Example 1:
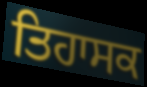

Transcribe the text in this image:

ਤਿਹਾਸਕ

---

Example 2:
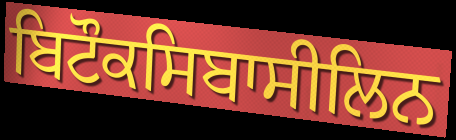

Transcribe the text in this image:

ਬਿਟੌਕਸਿਬਾਸੀਲਿਨ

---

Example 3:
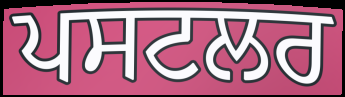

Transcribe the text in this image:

ਪਸਟਲਰ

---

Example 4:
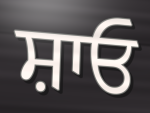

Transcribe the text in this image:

ਸ਼ਾਓ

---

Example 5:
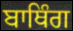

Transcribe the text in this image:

ਬਾਥਿੰਗ